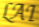
LAI